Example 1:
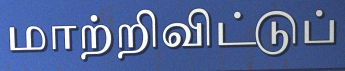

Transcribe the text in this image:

மாற்றிவிட்டுப்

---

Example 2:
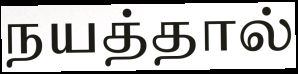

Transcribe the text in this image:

நயத்தால்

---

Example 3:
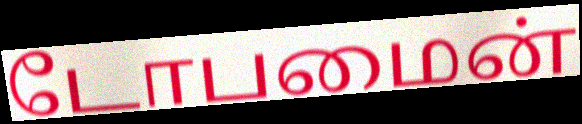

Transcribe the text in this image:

டோபமைன்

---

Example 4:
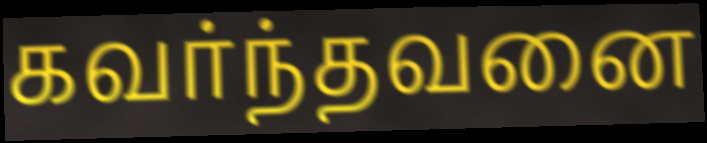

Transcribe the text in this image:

கவர்ந்தவனை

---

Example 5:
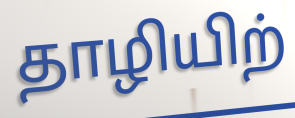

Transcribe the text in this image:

தாழியிற்